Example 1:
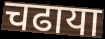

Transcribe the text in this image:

चढाया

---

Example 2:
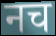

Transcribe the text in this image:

नच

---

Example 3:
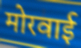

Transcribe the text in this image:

मोरवाई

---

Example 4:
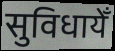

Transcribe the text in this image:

सुविधायेँ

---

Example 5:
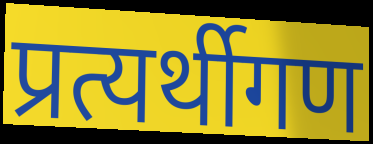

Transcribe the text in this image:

प्रत्यर्थीगण